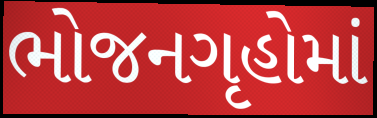
ભોજનગૃહોમાં